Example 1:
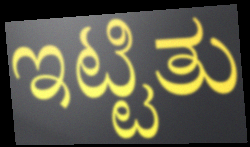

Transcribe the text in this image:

ಇಟ್ಟಿತು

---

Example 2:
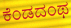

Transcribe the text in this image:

ಕೆಂಡದಂಥ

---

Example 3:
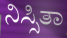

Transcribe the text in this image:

ನಿಸ್ಸಿತಾ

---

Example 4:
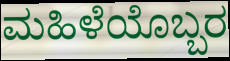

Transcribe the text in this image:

ಮಹಿಳೆಯೊಬ್ಬರ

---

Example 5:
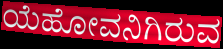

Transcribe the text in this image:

ಯೆಹೋವನಿಗಿರುವ